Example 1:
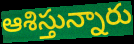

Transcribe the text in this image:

ఆశిస్తున్నారు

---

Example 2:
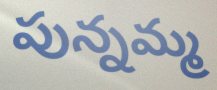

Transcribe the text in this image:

పున్నమ్మ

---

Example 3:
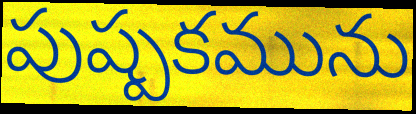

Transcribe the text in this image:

పుష్పకమును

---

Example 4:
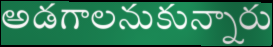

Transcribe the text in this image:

అడగాలనుకున్నారు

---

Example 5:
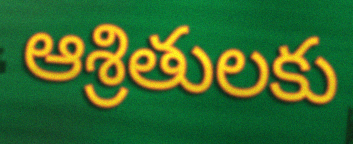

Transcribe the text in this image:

ఆశ్రితులకు